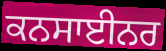
ਕਨਸਾਈਨਰ